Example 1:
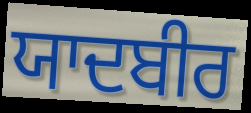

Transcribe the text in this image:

ਯਾਦਬੀਰ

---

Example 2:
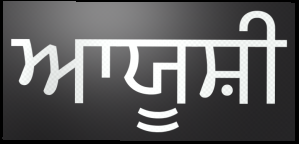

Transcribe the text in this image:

ਆਯੂਸ਼ੀ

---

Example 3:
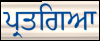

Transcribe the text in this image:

ਪ੍ਰਤਗਿਆ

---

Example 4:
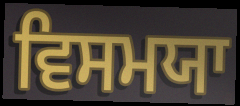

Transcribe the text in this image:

ਵਿਸਮਯਾ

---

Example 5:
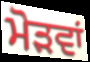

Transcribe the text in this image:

ਮੋੜਵਾਂ